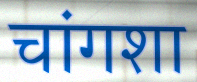
चांगशा